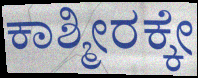
ಕಾಶ್ಮೀರಕ್ಕೇ